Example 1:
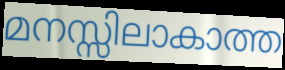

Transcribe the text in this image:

മനസ്സിലാകാത്ത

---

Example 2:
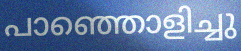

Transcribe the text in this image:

പാഞ്ഞൊളിച്ചു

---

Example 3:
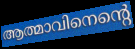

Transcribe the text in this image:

ആത്മാവിനെന്റെ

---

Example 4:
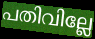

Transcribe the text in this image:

പതിവില്ലേ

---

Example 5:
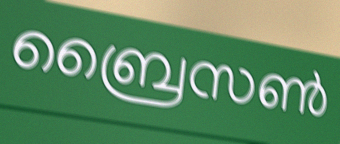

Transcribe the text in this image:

ബ്രൈസൺ